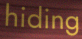
hiding